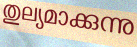
തുല്യമാക്കുന്നു